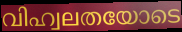
വിഹ്വലതയോടെ